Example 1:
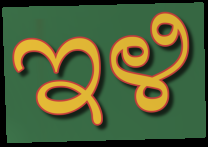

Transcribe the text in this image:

ಇಳಿ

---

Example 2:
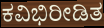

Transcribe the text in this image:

ಕವಿಭಿರೀಡಿತ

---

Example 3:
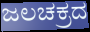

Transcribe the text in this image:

ಜಲಚಕ್ರದ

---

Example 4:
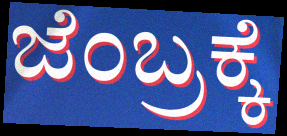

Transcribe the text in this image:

ಜೆಂಬ್ರಕ್ಕೆ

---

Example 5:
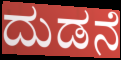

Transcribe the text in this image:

ದುಡನೆ